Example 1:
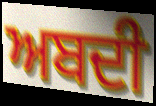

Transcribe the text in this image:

ਅਬਦੀ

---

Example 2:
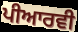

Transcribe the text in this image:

ਪੀਆਰਵੀ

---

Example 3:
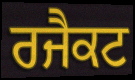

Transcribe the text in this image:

ਰਜੈਕਟ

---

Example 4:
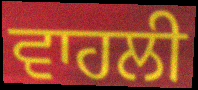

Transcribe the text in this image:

ਵਾਹਲੀ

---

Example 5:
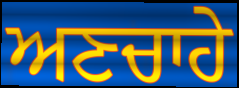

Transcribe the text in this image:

ਅਣਚਾਹੇ